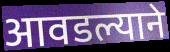
आवडल्याने